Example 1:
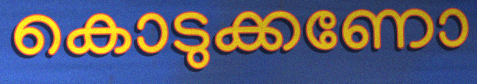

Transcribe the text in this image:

കൊടുക്കണോ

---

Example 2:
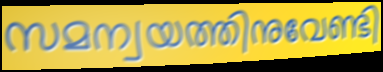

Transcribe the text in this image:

സമന്വയത്തിനുവേണ്ടി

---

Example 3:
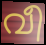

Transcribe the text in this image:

വീ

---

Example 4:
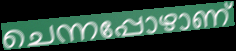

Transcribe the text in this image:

ചെന്നപ്പോഴാണ്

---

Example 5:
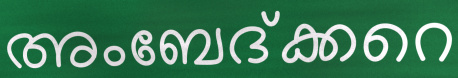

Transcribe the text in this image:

അംബേദ്ക്കറെ